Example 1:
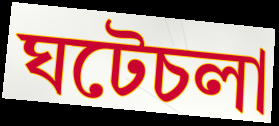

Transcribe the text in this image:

ঘটেচলা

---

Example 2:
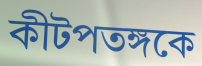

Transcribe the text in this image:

কীটপতঙ্গকে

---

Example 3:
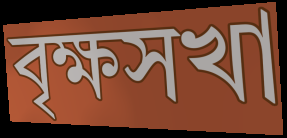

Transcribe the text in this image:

বৃক্ষসখা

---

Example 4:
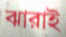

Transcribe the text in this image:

ঝারাই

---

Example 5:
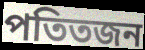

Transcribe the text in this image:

পতিতজন